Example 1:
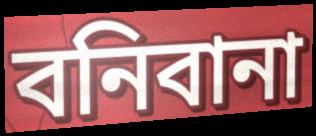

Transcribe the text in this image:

বনিবানা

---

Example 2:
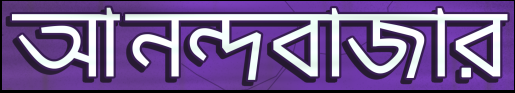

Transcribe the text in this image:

আনন্দবাজার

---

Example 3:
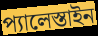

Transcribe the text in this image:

প্যালেস্তাইন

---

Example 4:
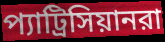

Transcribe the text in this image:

প্যাট্রিসিয়ানরা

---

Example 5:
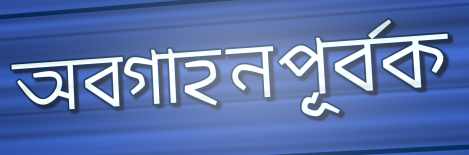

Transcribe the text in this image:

অবগাহনপূর্বক